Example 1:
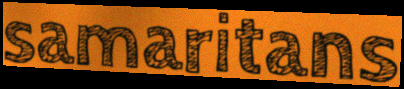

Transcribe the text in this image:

samaritans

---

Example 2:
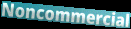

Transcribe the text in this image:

Noncommercial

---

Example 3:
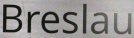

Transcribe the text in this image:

Breslau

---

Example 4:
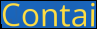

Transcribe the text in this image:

Contai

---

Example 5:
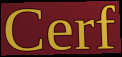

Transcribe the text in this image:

Cerf